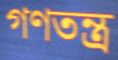
গণতন্ত্র